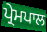
ਪ੍ਰੇਮਪਾਲ